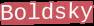
Boldsky